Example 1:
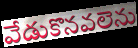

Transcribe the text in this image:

వేడుకొనవలెను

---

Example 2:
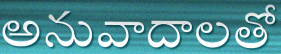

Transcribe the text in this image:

అనువాదాలతో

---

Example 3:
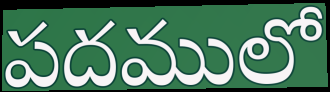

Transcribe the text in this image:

పదములో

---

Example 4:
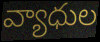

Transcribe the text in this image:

వ్యాధుల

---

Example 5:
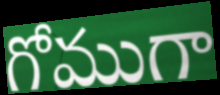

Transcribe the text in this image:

గోముగా